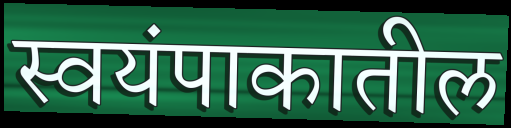
स्वयंपाकातील